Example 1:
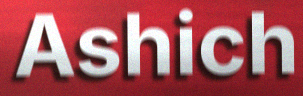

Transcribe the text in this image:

Ashich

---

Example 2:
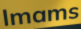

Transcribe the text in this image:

Imams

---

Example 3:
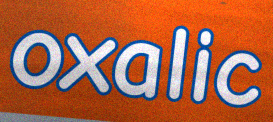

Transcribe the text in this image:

oxalic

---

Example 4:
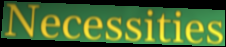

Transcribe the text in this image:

Necessities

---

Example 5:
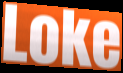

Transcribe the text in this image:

Loke